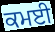
ਕਮਈ